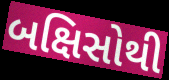
બક્ષિસોથી